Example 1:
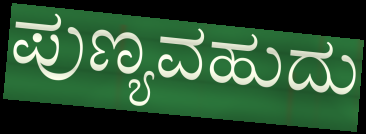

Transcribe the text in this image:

ಪುಣ್ಯವಹುದು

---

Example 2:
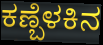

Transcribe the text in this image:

ಕಣ್ಬೆಳಕಿನ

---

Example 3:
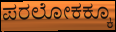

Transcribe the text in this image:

ಪರಲೋಕಕ್ಕೂ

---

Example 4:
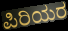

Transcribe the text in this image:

ಪಿರಿಯರ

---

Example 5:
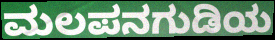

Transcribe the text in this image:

ಮಲಪನಗುಡಿಯ